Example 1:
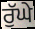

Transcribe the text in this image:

ਰੁੱਘੇ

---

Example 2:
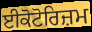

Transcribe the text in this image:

ਈਕੋਟੋਰਿਜ਼ਮ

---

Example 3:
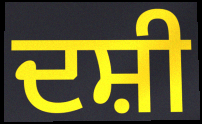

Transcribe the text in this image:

ਦਸ਼ੀ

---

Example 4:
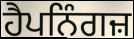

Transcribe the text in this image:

ਹੈਪਨਿੰਗਜ਼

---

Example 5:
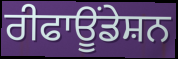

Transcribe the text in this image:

ਰੀਫਾਊਂਡੇਸ਼ਨ